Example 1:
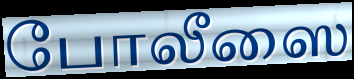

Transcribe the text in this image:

போலீஸை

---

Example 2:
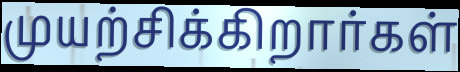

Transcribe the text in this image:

முயற்சிக்கிறார்கள்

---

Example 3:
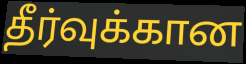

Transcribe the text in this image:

தீர்வுக்கான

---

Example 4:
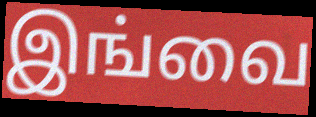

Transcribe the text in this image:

இங்வை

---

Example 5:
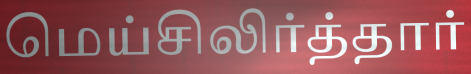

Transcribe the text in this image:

மெய்சிலிர்த்தார்